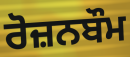
ਰੋਜ਼ਨਬੌਮ